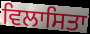
ਵਿਲਾਸਿਤਾ